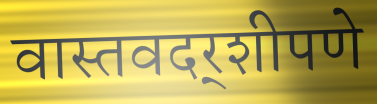
वास्तवदर्शीपणे